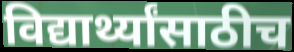
विद्यार्थ्यांसाठीच